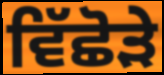
ਵਿੱਛੋੜੇ